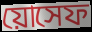
য়োসেফ